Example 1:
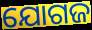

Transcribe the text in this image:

ଯୋଗଜ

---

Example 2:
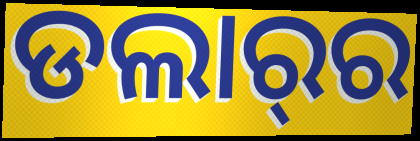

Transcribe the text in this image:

ଡଲାର୍‌ର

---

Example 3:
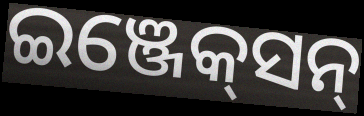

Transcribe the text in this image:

ଇଞ୍ଜେକ୍‍ସନ୍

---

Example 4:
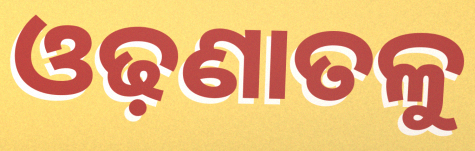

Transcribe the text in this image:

ଓଢ଼ଣାତଳୁ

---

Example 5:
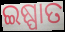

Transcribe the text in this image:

ଇଷ୍ପାତ